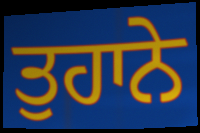
ਤੁਹਾਨੇ